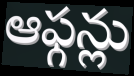
ఆఫ్గన్లు